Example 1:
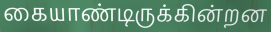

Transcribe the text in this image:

கையாண்டிருக்கின்றன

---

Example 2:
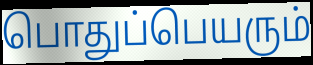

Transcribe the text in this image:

பொதுப்பெயரும்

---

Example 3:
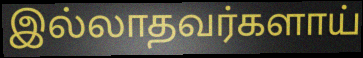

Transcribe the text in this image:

இல்லாதவர்களாய்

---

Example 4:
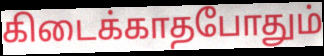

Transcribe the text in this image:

கிடைக்காதபோதும்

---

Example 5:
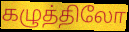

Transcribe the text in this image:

கழுத்திலோ